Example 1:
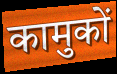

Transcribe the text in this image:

कामुकों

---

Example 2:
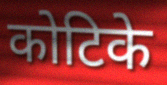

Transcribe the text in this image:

कोटिके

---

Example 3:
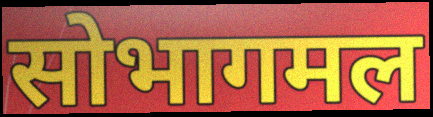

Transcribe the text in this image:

सोभागमल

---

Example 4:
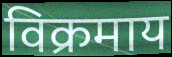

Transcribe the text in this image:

विक्रमाय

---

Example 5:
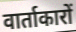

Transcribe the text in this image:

वार्ताकारों